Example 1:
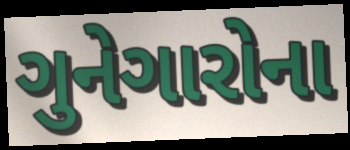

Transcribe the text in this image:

ગુનેગારોના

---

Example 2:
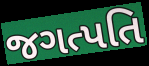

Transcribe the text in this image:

જગત્પતિ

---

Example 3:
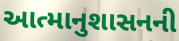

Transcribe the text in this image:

આત્માનુશાસનની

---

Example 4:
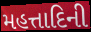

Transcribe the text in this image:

મહત્તાદિની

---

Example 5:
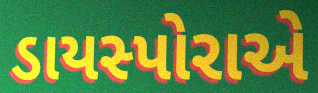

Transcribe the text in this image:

ડાયસ્પોરાએ